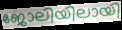
ജോലിയിലായി